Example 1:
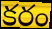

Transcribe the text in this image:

కరం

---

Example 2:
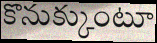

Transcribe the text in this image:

కొనుక్కుంటూ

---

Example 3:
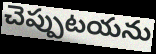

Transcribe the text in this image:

చెప్పుటయను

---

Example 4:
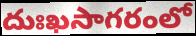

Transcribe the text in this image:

దుఃఖసాగరంలో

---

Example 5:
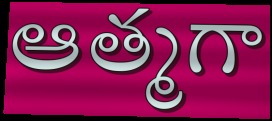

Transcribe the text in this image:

ఆత్మగా